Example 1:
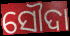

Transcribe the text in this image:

ସୌଦା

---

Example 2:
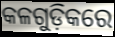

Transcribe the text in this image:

କଳଗୁଡ଼ିକରେ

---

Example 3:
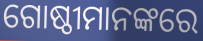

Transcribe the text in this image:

ଗୋଷ୍ଠୀମାନଙ୍କରେ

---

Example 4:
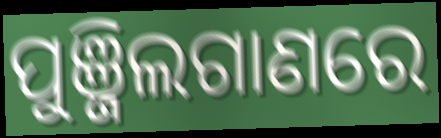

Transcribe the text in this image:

ପୁଞ୍ଜିଲଗାଣରେ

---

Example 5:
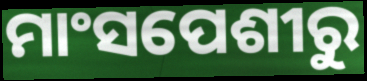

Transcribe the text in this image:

ମାଂସପେଶୀରୁ